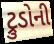
ટ્રુડોની